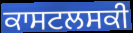
ਕਾਸਟਲਸਕੀ